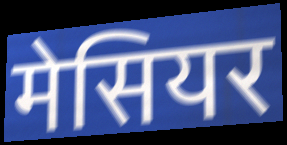
मेसियर